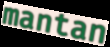
mantan